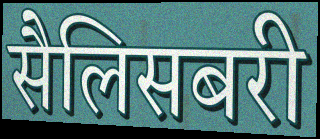
सैलिसबरी